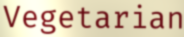
Vegetarian